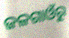
ଜଳଗାଓଁରୁ